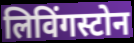
लिविंगस्टोन